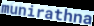
munirathna